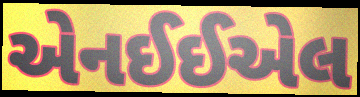
એનઈઈએલ